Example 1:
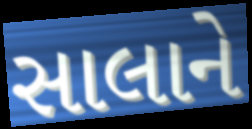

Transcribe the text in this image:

સાલાને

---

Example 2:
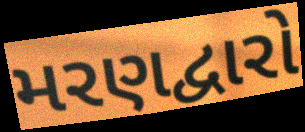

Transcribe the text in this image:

મરણદ્વારો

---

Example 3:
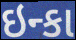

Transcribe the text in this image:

ઇન્કા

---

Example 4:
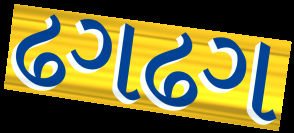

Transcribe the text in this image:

ઢગઢગ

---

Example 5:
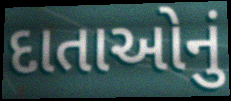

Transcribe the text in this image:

દાતાઓનું